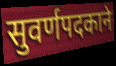
सुवर्णपदकाने